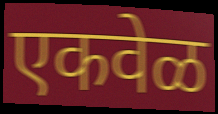
एकवेळ